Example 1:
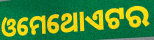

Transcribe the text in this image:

ଓମେଥୋଏଟର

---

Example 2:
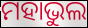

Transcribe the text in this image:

ମହାଭୁଲ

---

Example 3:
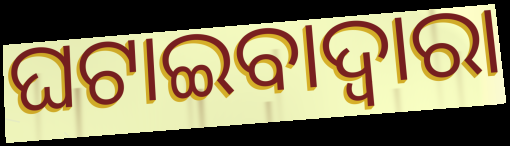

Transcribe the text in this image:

ଘଟାଇବାଦ୍ୱାରା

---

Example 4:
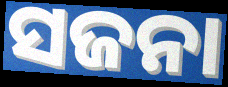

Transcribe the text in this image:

ସଜନା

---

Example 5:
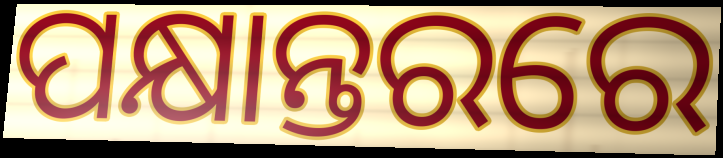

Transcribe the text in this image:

ପକ୍ଷାନ୍ତରରେ